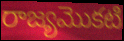
రాజ్యమొకటి